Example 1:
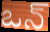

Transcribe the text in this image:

ఒన్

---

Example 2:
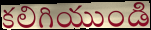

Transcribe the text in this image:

కలిగియుండి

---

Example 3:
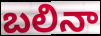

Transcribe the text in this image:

బలినా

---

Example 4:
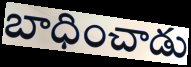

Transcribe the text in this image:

బాధించాడు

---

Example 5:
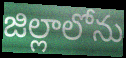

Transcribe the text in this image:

జిల్లాలోను